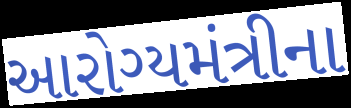
આરોગ્યમંત્રીના